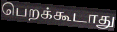
பெறக்கூடாது